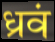
ध्रवं